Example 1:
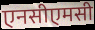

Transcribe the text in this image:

एनसीएमसी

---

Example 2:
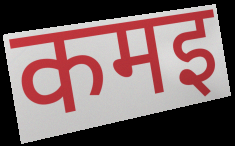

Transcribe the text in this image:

कमइ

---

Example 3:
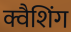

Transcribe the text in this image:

क्वैशिंग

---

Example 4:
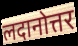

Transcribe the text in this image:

लदानोत्तर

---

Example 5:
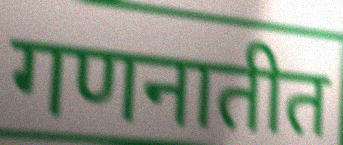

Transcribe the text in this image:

गणनातीत